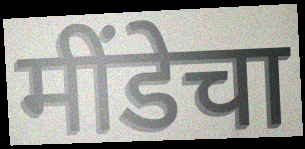
मींडेचा